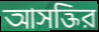
আসক্তির